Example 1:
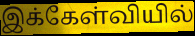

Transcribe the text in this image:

இக்கேள்வியில்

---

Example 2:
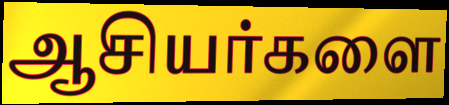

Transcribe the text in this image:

ஆசியர்களை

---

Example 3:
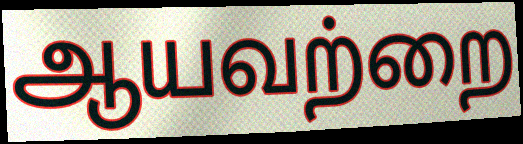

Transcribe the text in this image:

ஆயவற்றை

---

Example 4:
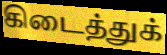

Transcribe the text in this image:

கிடைத்துக்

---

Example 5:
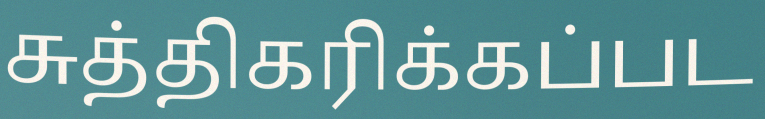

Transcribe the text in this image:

சுத்திகரிக்கப்பட